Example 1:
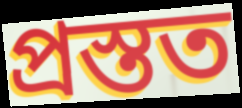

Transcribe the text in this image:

প্ৰস্তত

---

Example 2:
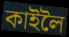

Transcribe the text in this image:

কাইলৈ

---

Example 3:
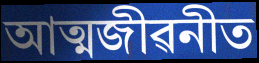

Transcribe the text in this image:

আত্মজীৱনীত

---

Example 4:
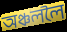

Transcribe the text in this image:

অঞ্চললৈ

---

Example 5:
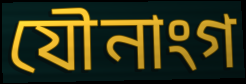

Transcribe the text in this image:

যৌনাংগ